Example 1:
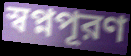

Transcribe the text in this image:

স্বপ্নপূরণ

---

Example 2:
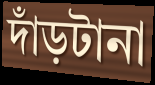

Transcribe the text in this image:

দাঁড়টানা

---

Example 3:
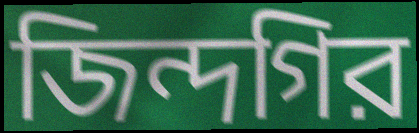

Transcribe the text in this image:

জিন্দগির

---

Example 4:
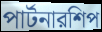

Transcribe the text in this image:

পার্টনারশিপ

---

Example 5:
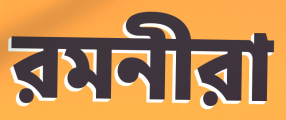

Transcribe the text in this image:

রমনীরা